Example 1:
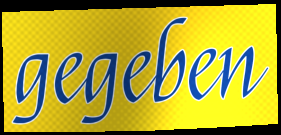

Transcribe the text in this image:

gegeben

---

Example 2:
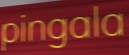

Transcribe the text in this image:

pingala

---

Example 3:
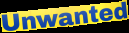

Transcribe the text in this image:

Unwanted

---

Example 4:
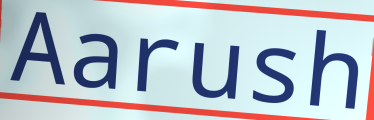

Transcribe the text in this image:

Aarush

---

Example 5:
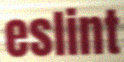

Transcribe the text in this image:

eslint